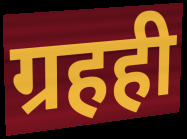
ग्रहही